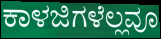
ಕಾಳಜಿಗಳೆಲ್ಲವೂ